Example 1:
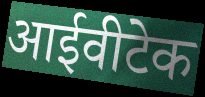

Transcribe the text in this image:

आईवीटेक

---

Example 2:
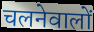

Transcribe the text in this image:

चलनेवालों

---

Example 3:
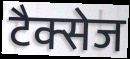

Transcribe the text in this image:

टैक्सेज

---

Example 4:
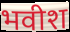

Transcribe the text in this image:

भवीश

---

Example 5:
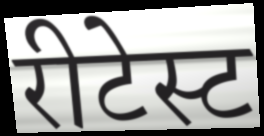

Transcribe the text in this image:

रीटेस्ट